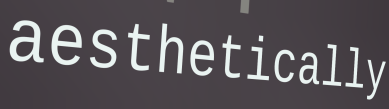
aesthetically